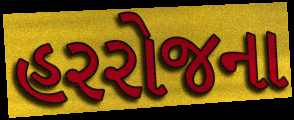
હરરોજના